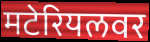
मटेरियलवर